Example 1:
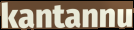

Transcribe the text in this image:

kantannu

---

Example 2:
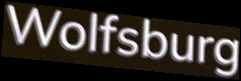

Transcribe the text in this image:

Wolfsburg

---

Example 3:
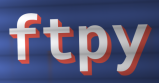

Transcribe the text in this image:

ftpy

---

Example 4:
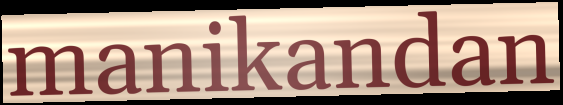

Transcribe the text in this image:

manikandan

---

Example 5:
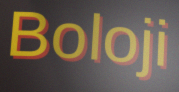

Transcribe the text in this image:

Boloji